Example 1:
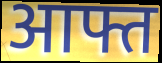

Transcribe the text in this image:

आफ्त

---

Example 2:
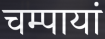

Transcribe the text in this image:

चम्पायां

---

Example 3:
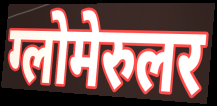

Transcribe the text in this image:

ग्लोमेरुलर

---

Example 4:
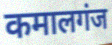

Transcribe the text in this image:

कमालगंज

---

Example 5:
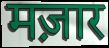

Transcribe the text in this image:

मज़ार